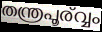
തന്ത്രപൂര്വ്വം